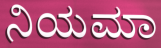
ನಿಯಮಾ